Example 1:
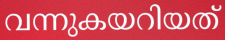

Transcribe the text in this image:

വന്നുകയറിയത്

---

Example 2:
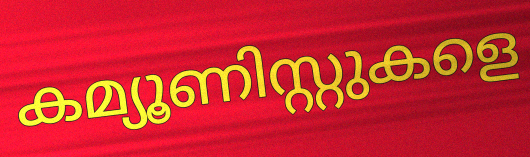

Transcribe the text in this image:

കമ്യൂണിസ്റ്റുകളെ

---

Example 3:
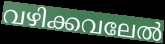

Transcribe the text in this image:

വഴിക്കവലേൽ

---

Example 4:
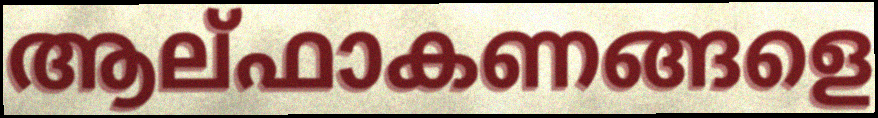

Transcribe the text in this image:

ആല്ഫാകണങ്ങളെ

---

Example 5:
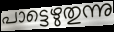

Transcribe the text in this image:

പാട്ടെഴുതുന്നു